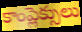
కాంప్లెక్సులు